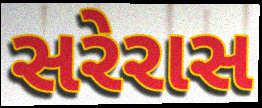
સરેરાસ